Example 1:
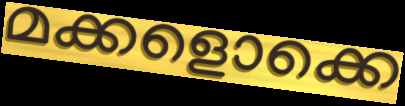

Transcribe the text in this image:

മക്കളൊക്കെ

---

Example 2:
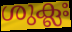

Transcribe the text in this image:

ശുക്ലഃ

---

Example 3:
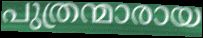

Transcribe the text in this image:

പുത്രന്മാരായ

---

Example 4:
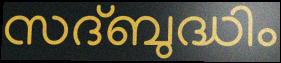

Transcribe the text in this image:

സദ്ബുദ്ധിം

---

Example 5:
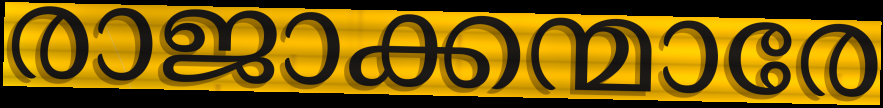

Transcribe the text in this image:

രാജാക്കന്മാരേ